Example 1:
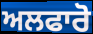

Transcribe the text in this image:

ਅਲਫਾਰੋ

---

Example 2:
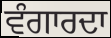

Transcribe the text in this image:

ਵੰਗਾਰਦਾ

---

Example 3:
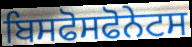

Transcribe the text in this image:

ਬਿਸਫੋਸਫੋਨੇਟਸ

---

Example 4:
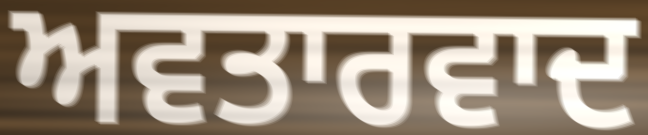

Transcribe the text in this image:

ਅਵਤਾਰਵਾਦ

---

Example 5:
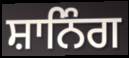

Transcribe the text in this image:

ਸ਼ਾਨਿੰਗ